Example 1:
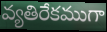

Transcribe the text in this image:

వ్యతిరేకముగా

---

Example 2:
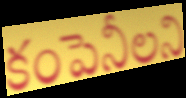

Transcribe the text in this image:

కంపెనీలని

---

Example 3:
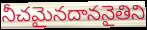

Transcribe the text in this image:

నీచమైనదాననైతిని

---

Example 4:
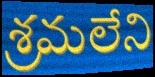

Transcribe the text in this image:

శ్రమలేని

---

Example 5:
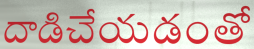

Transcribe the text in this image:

దాడిచేయడంతో